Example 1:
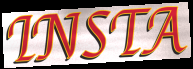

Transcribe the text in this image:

INSTA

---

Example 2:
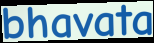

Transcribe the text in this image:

bhavata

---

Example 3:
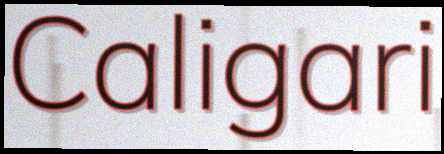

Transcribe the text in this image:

Caligari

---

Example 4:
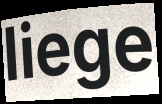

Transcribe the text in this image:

liege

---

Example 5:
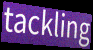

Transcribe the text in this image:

tackling